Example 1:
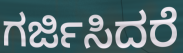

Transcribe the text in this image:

ಗರ್ಜಿಸಿದರೆ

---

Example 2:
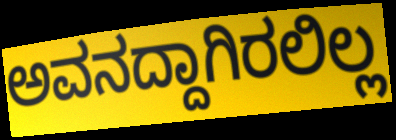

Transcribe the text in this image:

ಅವನದ್ದಾಗಿರಲಿಲ್ಲ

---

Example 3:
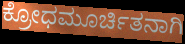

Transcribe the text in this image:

ಕ್ರೋಧಮೂರ್ಚಿತನಾಗಿ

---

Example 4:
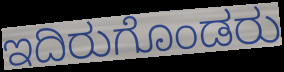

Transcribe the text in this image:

ಇದಿರುಗೊಂಡರು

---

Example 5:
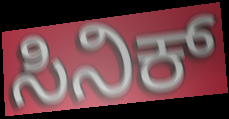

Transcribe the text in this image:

ಸಿನಿಕ್